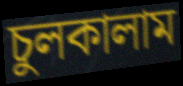
চুলকালাম